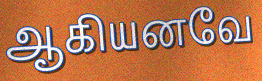
ஆகியனவே